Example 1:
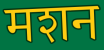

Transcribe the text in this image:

मशन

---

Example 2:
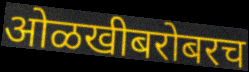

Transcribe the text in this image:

ओळखीबरोबरच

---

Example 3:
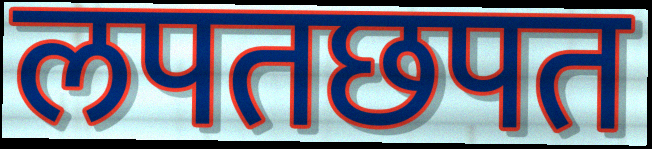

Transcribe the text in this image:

लपतछपत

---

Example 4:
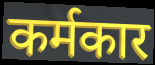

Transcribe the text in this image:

कर्मकार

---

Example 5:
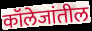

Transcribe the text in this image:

कॉलेजांतील